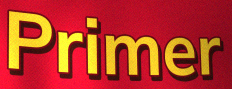
Primer